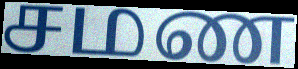
சமண